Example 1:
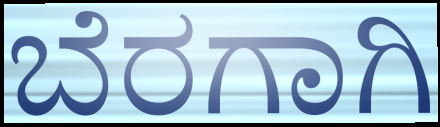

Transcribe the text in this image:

ಬೆರಗಾಗಿ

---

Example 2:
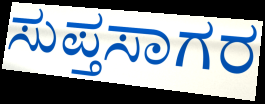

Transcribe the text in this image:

ಸುಪ್ತಸಾಗರ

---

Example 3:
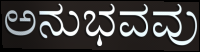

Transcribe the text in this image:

ಅನುಭವವು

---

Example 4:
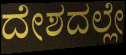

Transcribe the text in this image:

ದೇಶದಲ್ಲೇ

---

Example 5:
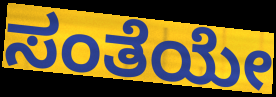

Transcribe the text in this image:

ಸಂತೆಯೇ